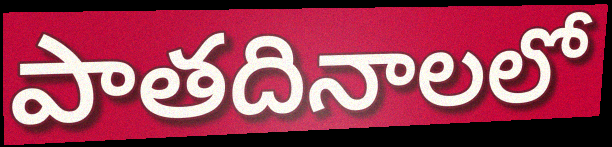
పాతదినాలలో